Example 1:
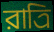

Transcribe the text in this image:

রাত্রি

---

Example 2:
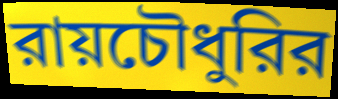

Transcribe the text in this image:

রায়চৌধুরির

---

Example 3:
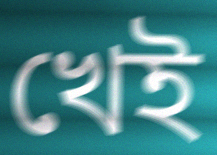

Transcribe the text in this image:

খেই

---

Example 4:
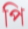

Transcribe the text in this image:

পি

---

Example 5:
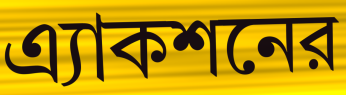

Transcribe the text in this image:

এ্যাকশনের